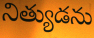
నిత్యుడను